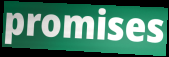
promises